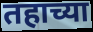
तहाच्या